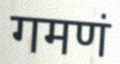
गमणं